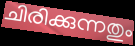
ചിരിക്കുന്നതും